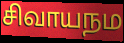
சிவாயநம